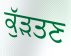
ਕੁੱੜਤਣ